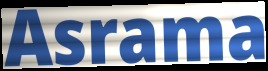
Asrama